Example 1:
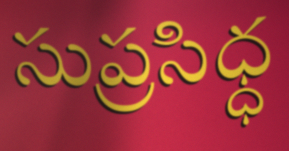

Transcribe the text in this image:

సుప్రసిధ్ధ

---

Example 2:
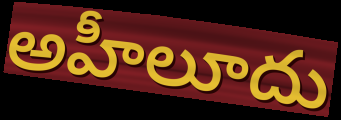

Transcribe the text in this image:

అహీలూదు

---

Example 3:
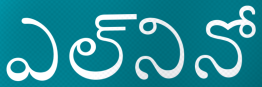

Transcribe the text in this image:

ఎల్‌నినో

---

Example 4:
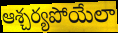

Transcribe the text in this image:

ఆశ్చర్యపోయేలా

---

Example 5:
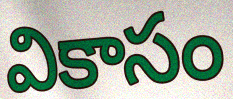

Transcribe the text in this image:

వికాసం